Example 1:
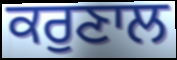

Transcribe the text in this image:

ਕਰੁਣਾਲ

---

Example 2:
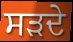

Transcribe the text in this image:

ਸੜਦੇ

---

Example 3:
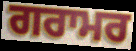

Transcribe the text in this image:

ਗਰਾਮਰ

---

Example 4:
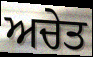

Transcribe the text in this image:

ਅਚੇਤ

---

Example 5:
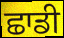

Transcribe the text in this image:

ਛਾਡੀ